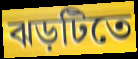
ঝড়টিতে